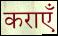
कराएँ